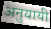
अनुयायी